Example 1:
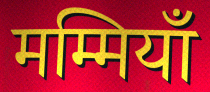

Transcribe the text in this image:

मम्मियाँ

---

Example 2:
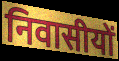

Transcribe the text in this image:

निवासीयों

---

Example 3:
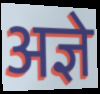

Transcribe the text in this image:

अज्ञे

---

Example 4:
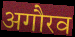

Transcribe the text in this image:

अगौरव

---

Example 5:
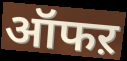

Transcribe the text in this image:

ऑफऱ